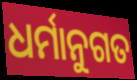
ଧର୍ମାନୁଗତ